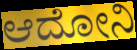
ಆದೋನಿ